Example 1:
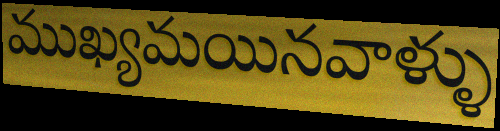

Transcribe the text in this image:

ముఖ్యమయినవాళ్ళు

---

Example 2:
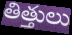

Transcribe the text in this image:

తిత్తులు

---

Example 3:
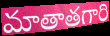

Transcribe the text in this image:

మాతాతగారి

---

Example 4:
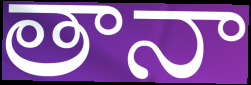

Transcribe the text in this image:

తానా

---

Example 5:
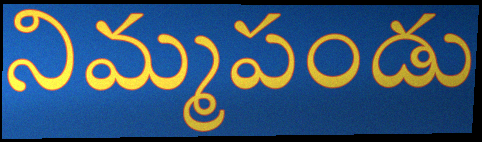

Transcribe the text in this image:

నిమ్మపండు